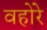
वहोरे